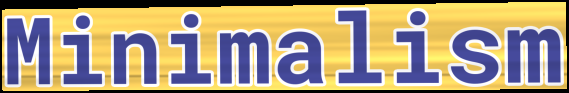
Minimalism